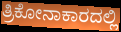
ತ್ರಿಕೋನಾಕಾರದಲ್ಲಿ